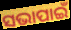
ସଭାପାଇଁ